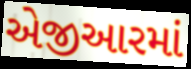
એજીઆરમાં